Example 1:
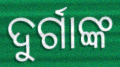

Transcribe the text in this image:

ଦୁର୍ଗାଙ୍କ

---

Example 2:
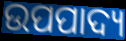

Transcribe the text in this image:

ଉପପାଦ୍ୟ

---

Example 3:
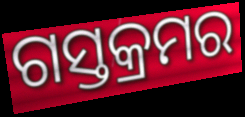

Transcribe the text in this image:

ଗସ୍ତକ୍ରମର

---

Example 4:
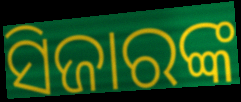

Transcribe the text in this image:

ସିଜାରଙ୍କ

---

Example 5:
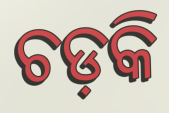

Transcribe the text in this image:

ଚଡ଼କି